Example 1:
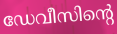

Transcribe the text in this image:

ഡേവീസിന്റെ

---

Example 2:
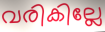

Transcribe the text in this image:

വരികില്ലേ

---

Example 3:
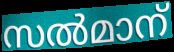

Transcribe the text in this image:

സൽമാന്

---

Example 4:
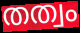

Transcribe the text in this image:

തത്വം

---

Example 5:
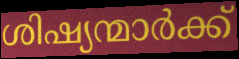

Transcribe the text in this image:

ശിഷ്യന്മാർക്ക്